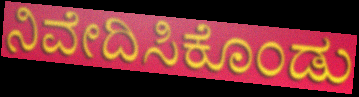
ನಿವೇದಿಸಿಕೊಂಡು